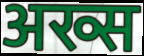
अख्स